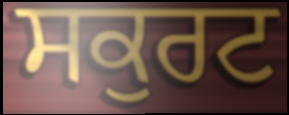
ਸਕੁਰਟ